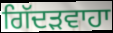
ਗਿੱਦੜਵਾਹਾ